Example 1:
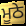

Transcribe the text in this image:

ਮੂਠੇ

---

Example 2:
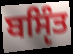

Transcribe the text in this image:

ਬਸੵਿੰਤ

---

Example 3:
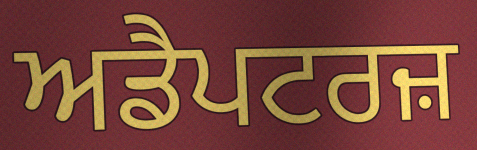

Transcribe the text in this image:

ਅਡੈਪਟਰਜ਼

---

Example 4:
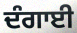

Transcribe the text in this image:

ਦੰਗਾਈ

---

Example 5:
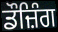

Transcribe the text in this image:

ਡੌਜ਼ਿੰਗ